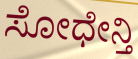
ಸೋಧೇನ್ತಿ